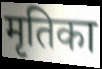
मृतिका